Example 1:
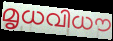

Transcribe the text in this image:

മൃധവിധൗ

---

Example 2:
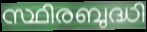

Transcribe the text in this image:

സ്ഥിരബുദ്ധി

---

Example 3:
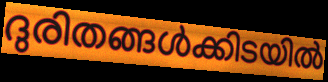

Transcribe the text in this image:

ദുരിതങ്ങൾക്കിടയിൽ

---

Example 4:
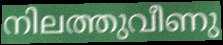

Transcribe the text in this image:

നിലത്തുവീണു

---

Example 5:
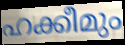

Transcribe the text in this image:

ഹക്കീമും